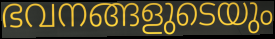
ഭവനങ്ങളുടെയും